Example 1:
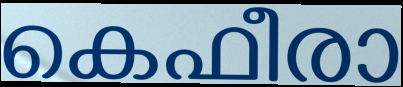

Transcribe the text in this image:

കെഫീരാ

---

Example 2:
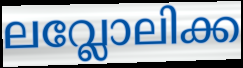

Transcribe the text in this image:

ലവ്ലോലിക്ക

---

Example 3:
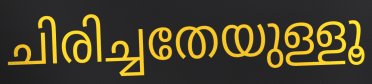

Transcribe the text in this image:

ചിരിച്ചതേയുള്ളൂ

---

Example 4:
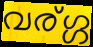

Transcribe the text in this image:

വര്ഗ്ഗ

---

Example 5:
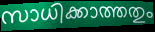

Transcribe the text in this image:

സാധിക്കാത്തതും